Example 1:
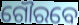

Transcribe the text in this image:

ଗୌରବେ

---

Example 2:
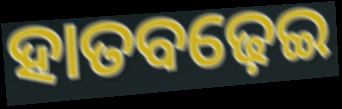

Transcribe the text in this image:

ହାତବଢ଼େଇ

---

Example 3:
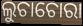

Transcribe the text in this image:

ଲୁଚାଚୋରା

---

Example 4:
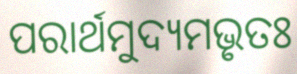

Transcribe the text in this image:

ପରାର୍ଥମୁଦ୍ୟମଭୃତଃ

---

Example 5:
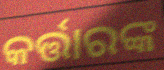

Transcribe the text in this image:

କର୍ତ୍ତାରଙ୍କ